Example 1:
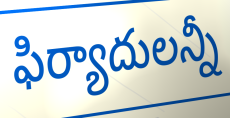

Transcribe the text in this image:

ఫిర్యాదులన్నీ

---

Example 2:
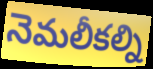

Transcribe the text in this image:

నెమలీకల్ని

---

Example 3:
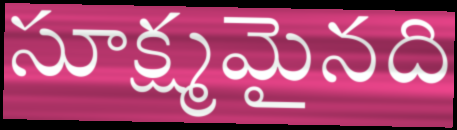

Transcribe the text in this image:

సూక్ష్మమైనది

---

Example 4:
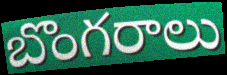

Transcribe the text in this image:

బొంగరాలు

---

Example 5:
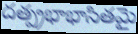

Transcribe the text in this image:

దత్ప్రభాభాసితమై